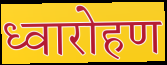
ध्वारोहण